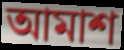
আমাশ